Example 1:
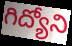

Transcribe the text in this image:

గిద్యోని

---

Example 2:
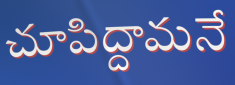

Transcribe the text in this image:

చూపిద్దామనే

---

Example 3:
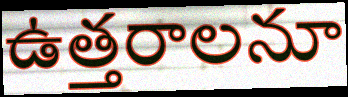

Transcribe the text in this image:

ఉత్తరాలనూ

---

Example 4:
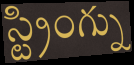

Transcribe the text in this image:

స్ట్రింగ్ను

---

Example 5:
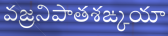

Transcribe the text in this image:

వజ్రనిపాతశఙ్కయా